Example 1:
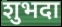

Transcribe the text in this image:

शुभदा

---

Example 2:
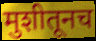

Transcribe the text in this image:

मुशीतूनच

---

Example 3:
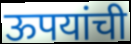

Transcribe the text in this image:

ऊपयांची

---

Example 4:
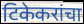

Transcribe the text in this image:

टिकेकरांचा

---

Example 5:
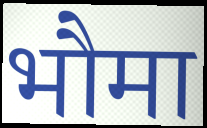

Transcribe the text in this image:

भौमा